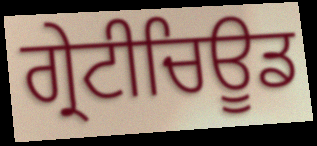
ਗ੍ਰੇਟੀਚਿਊਡ